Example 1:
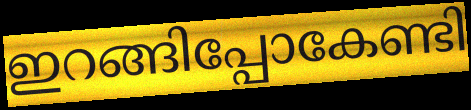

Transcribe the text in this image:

ഇറങ്ങിപ്പോകേണ്ടി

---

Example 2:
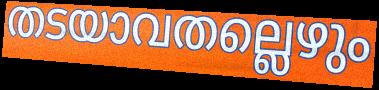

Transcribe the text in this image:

തടയാവതല്ലെഴും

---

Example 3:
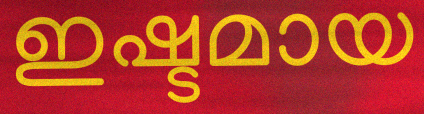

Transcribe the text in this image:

ഇഷ്ടമായ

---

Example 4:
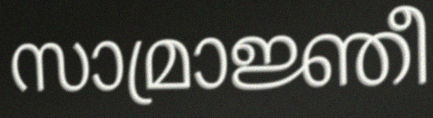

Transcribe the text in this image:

സാമ്രാജ്ഞീ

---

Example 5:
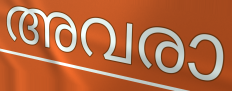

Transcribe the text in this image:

അവരാ